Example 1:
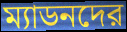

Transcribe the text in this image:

ম্যাডনদের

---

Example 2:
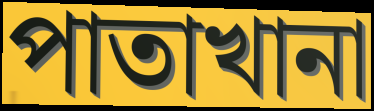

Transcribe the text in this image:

পাতাখানা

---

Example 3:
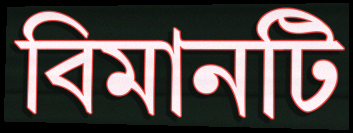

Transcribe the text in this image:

বিমানটি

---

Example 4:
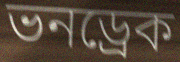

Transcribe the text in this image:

ভনড্রেক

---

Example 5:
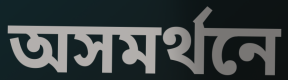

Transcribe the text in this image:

অসমর্থনে